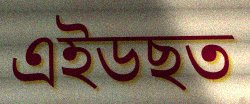
এইডছত